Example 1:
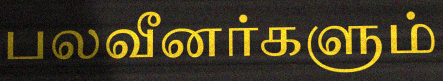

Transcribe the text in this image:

பலவீனர்களும்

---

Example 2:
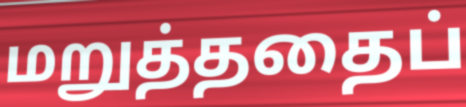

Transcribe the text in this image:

மறுத்ததைப்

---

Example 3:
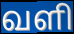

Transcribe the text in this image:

வளி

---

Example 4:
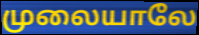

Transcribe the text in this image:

முலையாலே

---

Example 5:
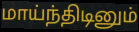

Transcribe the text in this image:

மாய்ந்திடினும்